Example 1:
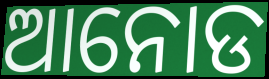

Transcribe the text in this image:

ଆନୋଡ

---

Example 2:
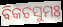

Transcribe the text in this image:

ବିକଚସୁମଃ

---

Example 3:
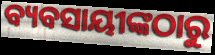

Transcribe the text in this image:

ବ୍ୟବସାୟୀଙ୍କଠାରୁ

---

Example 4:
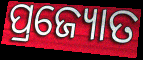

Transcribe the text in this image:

ପ୍ରଜ୍ୟୋତ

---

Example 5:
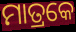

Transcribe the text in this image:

ମାତ୍ରକେ